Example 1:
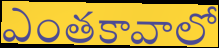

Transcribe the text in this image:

ఎంతకావాలో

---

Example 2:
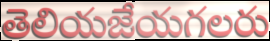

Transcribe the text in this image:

తెలియజేయగలరు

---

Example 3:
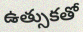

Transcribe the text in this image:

ఉత్సుకతో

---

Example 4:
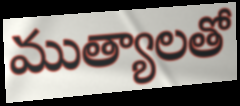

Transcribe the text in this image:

ముత్యాలతో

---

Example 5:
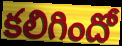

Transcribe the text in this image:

కలిగిందో